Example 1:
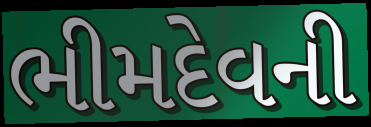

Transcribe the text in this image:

ભીમદેવની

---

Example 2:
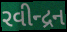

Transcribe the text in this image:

રવીન્દ્રન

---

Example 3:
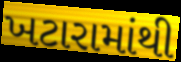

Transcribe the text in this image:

ખટારામાંથી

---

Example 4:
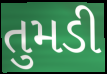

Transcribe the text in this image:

તુમડી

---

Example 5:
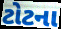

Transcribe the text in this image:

ટોટના